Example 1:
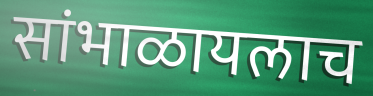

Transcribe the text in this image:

सांभाळायलाच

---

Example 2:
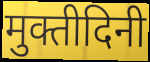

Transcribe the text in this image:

मुक्तीदिनी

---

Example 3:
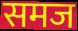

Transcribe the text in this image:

समज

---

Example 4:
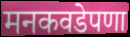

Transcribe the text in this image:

मनकवडेपणा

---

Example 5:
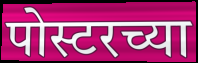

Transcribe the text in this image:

पोस्टरच्या